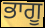
ਭਾਗੂ